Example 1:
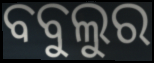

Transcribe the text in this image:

ବବୁଲୁର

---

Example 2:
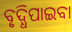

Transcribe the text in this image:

ବୃଦ୍ଧିପାଇବା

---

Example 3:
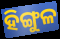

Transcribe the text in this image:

ହିଙ୍ଗୁଳ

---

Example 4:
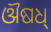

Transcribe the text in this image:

ଔଷଧ୍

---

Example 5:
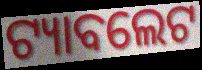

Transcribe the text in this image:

ଟ୍ୟାବଲେଟ